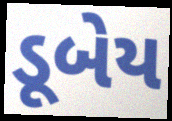
ડૂબેય